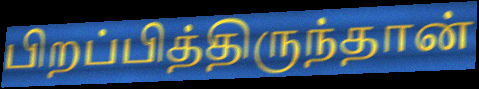
பிறப்பித்திருந்தான்